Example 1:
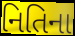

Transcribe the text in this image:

નિતિના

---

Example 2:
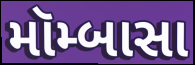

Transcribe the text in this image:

મૉમ્બાસા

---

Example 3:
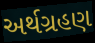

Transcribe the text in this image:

અર્થગ્રહણ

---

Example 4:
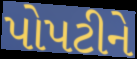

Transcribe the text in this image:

પોપટીને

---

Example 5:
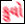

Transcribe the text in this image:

કુવો